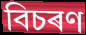
বিচৰণ